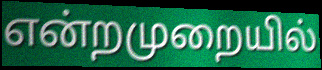
என்றமுறையில்